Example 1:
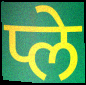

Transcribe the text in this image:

प्ले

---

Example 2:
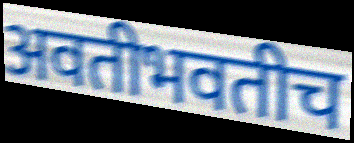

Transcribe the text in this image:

अवतीभवतीच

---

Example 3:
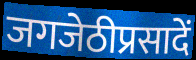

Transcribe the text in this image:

जगजेठीप्रसादें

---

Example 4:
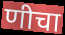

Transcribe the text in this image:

णीचा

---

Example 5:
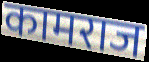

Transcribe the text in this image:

कामराज